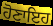
ਹੋਣਾਇਹ